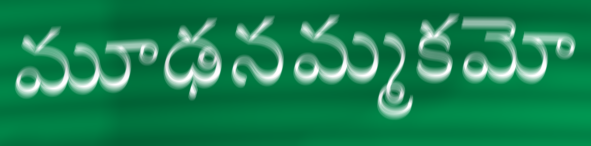
మూఢనమ్మకమో